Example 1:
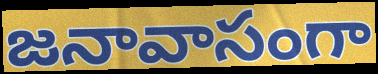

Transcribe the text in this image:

జనావాసంగా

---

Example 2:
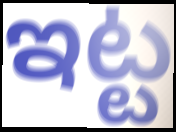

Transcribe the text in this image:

ఇట్ట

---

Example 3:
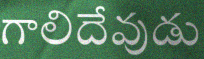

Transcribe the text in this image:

గాలిదేవుడు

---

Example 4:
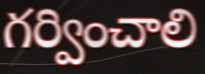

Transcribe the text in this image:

గర్వించాలి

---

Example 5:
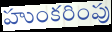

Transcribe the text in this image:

హుంకరింపు